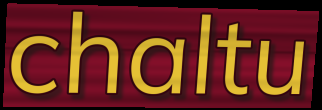
chaltu